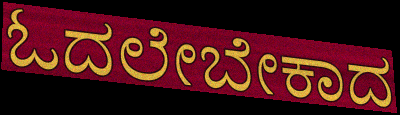
ಓದಲೇಬೇಕಾದ